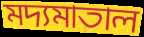
মদ্যমাতাল